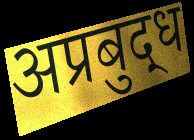
अप्रबुद्ध